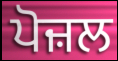
ਪੋਜ਼ਲ